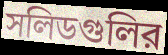
সলিডগুলির